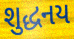
શુદ્ધનય